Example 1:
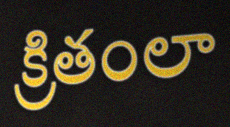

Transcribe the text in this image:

క్రితంలా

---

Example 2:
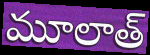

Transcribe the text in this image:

మూలాత్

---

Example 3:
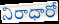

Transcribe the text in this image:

నిరాధారో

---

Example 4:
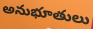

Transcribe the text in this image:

అనుభూతులు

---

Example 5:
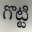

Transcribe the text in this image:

గొట్టి